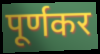
पूर्णकर